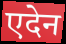
एदेन